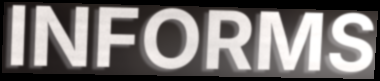
INFORMS